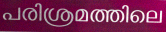
പരിശ്രമത്തിലെ